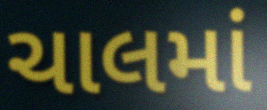
ચાલમાં